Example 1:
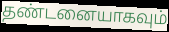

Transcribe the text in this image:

தண்டனையாகவும்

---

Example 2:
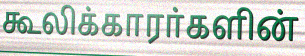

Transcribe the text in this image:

கூலிக்காரர்களின்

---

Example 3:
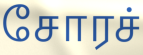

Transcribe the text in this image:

சோரச்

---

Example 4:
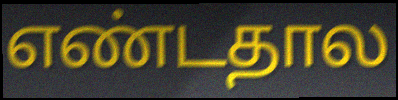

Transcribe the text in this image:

எண்டதால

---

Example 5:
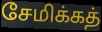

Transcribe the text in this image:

சேமிக்கத்